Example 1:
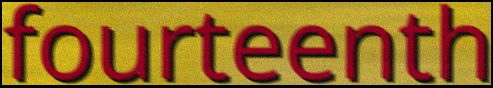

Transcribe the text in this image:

fourteenth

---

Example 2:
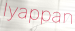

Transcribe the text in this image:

Iyappan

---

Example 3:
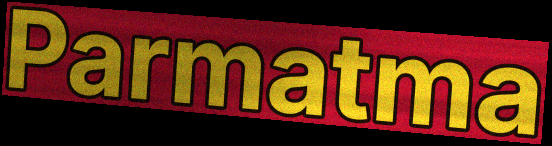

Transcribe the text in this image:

Parmatma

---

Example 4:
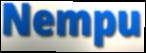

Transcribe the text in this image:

Nempu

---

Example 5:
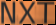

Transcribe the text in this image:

NXT